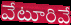
వేటూరివే